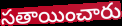
సతాయించారు